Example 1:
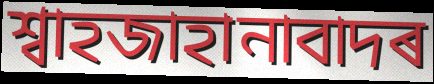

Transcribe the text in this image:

শ্বাহজাহানাবাদৰ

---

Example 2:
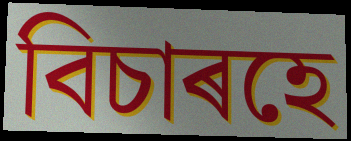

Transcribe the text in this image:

বিচাৰহে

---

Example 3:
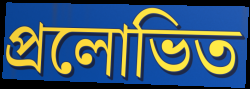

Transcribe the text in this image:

প্ৰলোভিত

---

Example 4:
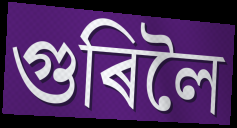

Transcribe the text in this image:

গুৰিলৈ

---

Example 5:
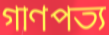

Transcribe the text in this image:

গাণপত্য